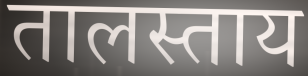
तालस्ताय